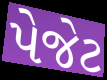
પેજેટ